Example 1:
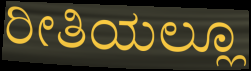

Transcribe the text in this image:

ರೀತಿಯಲ್ಲೂ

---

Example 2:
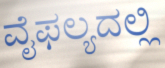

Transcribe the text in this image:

ವೈಫಲ್ಯದಲ್ಲಿ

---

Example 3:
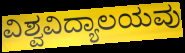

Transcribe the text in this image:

ವಿಶ್ವವಿದ್ಯಾಲಯವು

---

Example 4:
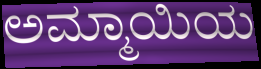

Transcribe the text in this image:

ಅಮ್ಮಾಯಿಯ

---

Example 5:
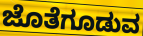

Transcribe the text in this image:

ಜೊತೆಗೂಡುವ